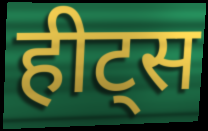
हीट्स